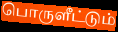
பொருளீட்டும்